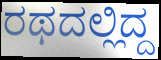
ರಥದಲ್ಲಿದ್ದ